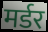
मर्डर